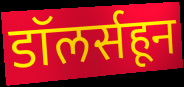
डॉलर्सहून